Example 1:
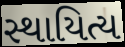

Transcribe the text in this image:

સ્થાયિત્ય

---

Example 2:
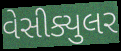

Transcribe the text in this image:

વેસીક્યુલર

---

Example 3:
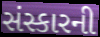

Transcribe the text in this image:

સંસ્કારની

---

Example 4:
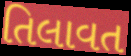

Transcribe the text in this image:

તિલાવત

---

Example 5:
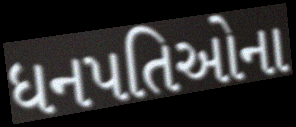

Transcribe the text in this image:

ધનપતિઓના